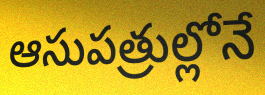
ఆసుపత్రుల్లోనే